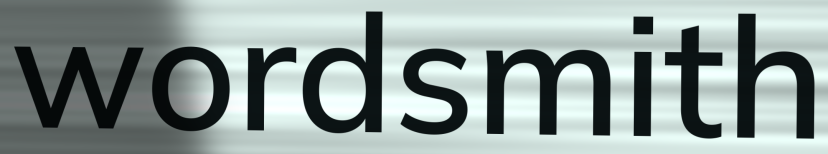
wordsmith